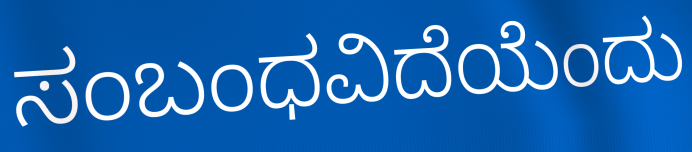
ಸಂಬಂಧವಿದೆಯೆಂದು